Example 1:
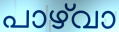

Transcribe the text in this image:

പാഴ്‌വാ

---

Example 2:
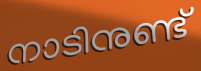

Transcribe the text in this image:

നാടിനുണ്ട്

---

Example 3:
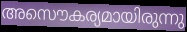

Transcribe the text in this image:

അസൌകര്യമായിരുന്നു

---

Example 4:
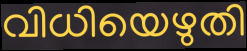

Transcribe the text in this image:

വിധിയെഴുതി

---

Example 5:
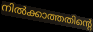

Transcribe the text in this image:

നിൽക്കാത്തതിന്റെ